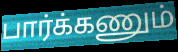
பார்க்கணும்